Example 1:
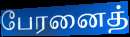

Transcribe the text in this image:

பேரனைத்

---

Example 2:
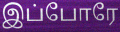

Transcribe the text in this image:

இப்போரே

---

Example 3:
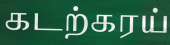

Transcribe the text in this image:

கடற்கரய்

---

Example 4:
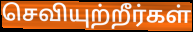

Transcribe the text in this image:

செவியுற்றீர்கள்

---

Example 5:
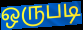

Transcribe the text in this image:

ஒருபடி